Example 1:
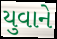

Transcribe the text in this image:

યુવાને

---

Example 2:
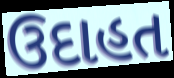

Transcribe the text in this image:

ઉદાહત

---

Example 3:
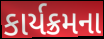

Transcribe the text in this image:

કાર્યક્રમના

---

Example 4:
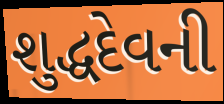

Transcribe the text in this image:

શુદ્ધદેવની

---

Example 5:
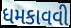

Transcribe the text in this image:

ધમકાવવી